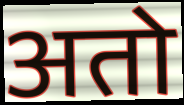
अतो